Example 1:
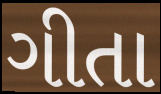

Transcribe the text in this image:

ગીતા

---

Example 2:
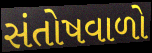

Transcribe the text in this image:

સંતોષવાળો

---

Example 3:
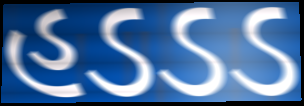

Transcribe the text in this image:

હડડડ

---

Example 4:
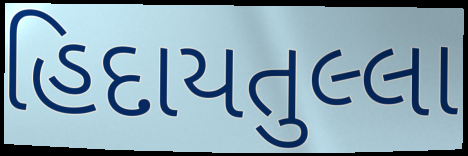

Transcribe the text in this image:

હિદાયતુલ્લા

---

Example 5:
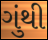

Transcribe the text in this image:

ગુંથી